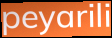
peyarili